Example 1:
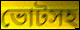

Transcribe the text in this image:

ভোটসহ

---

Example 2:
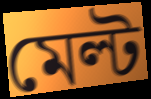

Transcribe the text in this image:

মেল্ট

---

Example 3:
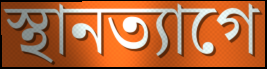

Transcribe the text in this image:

স্থানত্যাগে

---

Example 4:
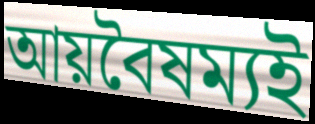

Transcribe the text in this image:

আয়বৈষম্যই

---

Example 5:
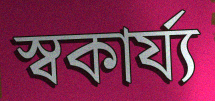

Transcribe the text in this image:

স্বকার্য্য